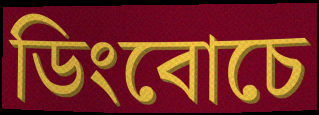
ডিংবোচে